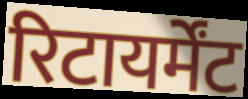
रिटायर्मेंट